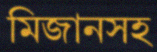
মিজানসহ